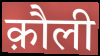
क़ौली